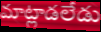
మాట్లాడలేడు